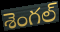
శెంగల్